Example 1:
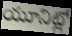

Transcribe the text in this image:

యూనిట్లో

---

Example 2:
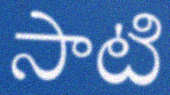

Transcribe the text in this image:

సాటి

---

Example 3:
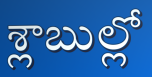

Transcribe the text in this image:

శ్లాబుల్లో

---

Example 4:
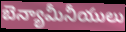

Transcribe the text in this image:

బెన్యామీనీయులు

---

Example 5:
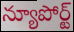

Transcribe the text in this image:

న్యూపోర్ట్